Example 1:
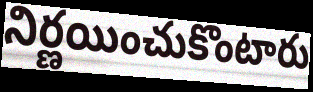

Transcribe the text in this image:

నిర్ణయించుకొంటారు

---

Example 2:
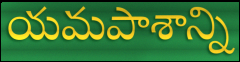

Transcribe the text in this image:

యమపాశాన్ని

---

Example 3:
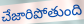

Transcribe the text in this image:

చేజారిపోతుంది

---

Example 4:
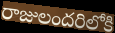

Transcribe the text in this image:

రాజులందరిలోకి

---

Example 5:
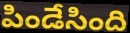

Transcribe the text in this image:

పిండేసింది